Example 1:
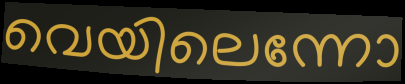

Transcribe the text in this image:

വെയിലെന്നോ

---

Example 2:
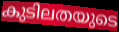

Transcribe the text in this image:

കുടിലതയുടെ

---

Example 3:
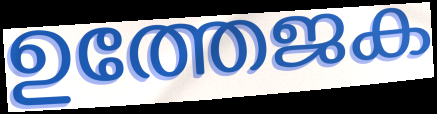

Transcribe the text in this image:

ഉത്തേജക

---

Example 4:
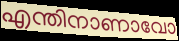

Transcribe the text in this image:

എന്തിനാണാവോ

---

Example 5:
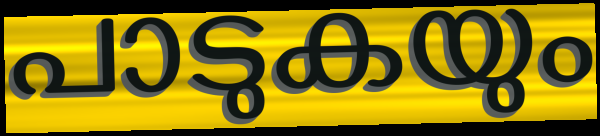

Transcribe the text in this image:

പാടുകയും